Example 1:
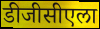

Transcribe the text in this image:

डीजीसीएला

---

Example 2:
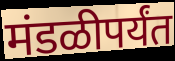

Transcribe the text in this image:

मंडळीपर्यंत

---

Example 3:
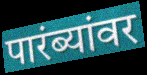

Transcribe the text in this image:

पारंब्यांवर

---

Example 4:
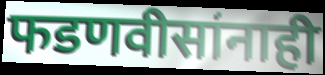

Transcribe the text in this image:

फडणवीसांनाही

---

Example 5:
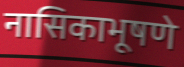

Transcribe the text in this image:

नासिकाभूषणे